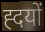
ह्दयों